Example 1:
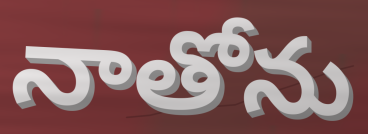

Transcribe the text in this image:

నాతోను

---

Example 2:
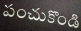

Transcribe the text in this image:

పంచుకొండి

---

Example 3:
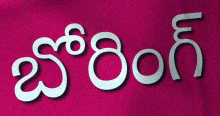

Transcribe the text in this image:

బోరింగ్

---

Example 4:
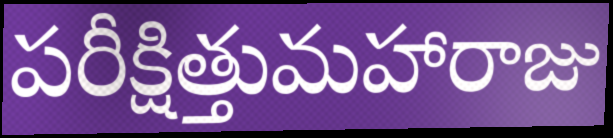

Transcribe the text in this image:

పరీక్షిత్తుమహారాజు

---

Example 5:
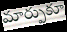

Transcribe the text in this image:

మార్పుకూ